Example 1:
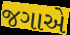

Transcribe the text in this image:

જગાએ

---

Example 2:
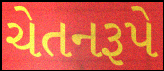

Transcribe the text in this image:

ચેતનરૂપે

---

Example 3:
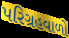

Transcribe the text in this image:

પરિગ્રહવાળો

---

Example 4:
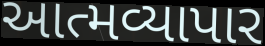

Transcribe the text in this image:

આત્મવ્યાપાર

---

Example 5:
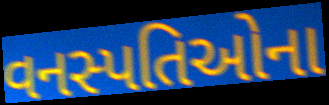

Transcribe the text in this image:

વનસ્પતિઓના